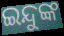
ଇନ୍ଦୁଙ୍କ